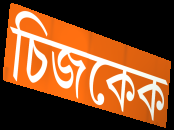
চিজকেক